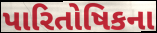
પારિતોષિકના